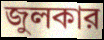
জুলকার